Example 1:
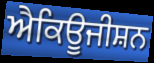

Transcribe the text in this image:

ਐਕਿਊਜੀਸ਼ਨ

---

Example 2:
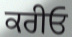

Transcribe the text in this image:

ਕਰੀਓ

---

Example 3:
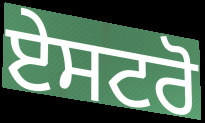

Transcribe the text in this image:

ਏਸਟਰੋ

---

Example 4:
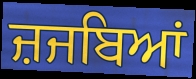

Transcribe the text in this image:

ਜ਼ਜਬਿਆਂ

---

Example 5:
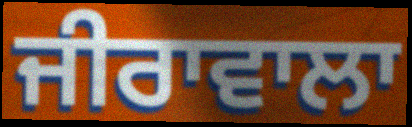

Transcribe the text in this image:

ਜੀਰਾਵਾਲਾ